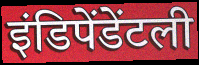
इंडिपेंडेंटली